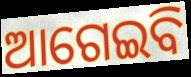
ଆଗେଇବି